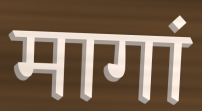
मागां